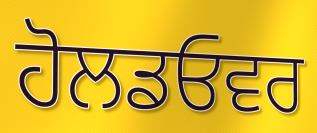
ਹੋਲਡਓਵਰ